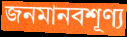
জনমানবশূণ্য